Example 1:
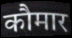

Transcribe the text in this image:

कौमार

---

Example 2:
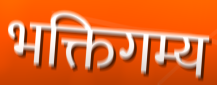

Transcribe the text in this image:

भक्तिगम्य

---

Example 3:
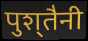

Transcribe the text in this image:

पुश्तैनी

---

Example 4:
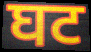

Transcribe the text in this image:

घट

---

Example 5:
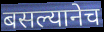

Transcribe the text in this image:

बसल्यानेच